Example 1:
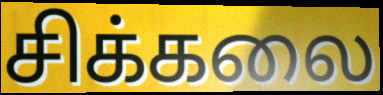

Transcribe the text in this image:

சிக்கலை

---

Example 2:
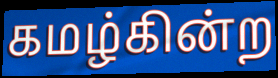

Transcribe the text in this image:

கமழ்கின்ற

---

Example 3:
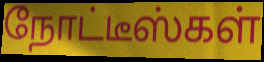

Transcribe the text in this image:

நோட்டீஸ்கள்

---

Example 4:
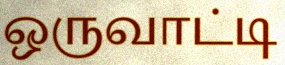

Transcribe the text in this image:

ஒருவாட்டி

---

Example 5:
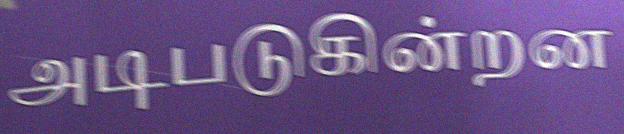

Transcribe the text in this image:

அடிபடுகின்றன